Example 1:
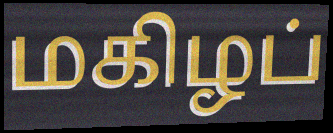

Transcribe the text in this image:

மகிழப்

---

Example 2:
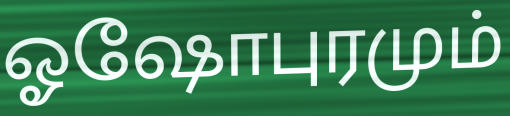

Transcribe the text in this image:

ஓஷோபுரமும்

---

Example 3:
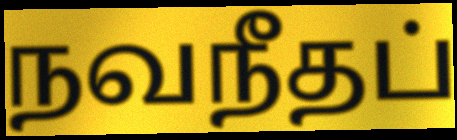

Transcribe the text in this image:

நவநீதப்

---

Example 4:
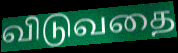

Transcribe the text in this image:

விடுவதை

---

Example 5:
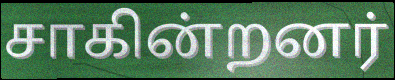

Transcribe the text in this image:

சாகின்றனர்